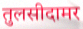
तुलसीदामर